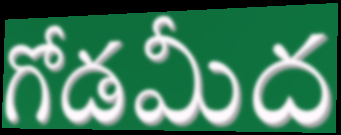
గోడమీద